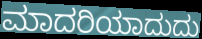
ಮಾದರಿಯಾದುದು